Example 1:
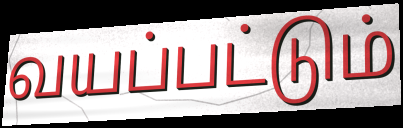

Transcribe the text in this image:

வயப்பட்டும்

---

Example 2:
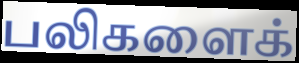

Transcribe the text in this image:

பலிகளைக்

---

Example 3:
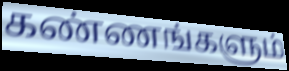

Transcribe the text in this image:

கண்ணங்களும்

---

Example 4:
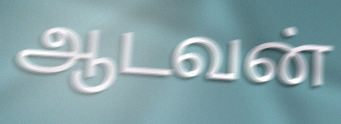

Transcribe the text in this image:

ஆடவன்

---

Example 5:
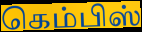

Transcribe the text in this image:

கெம்பிஸ்